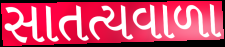
સાતત્યવાળા